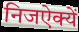
निजऐक्यें